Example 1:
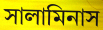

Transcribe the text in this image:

সালামিনাস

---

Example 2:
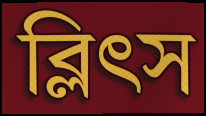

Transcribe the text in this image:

ব্লিৎস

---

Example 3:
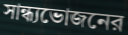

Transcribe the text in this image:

সান্ধ্যভোজনের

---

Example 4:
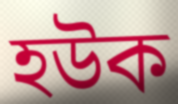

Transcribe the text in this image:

হউক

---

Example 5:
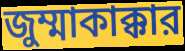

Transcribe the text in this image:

জুম্মাকাক্কার